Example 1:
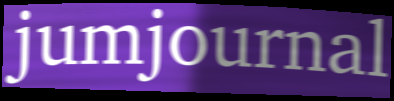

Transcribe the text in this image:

jumjournal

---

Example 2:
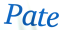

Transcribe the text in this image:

Pate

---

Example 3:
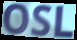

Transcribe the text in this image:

OSL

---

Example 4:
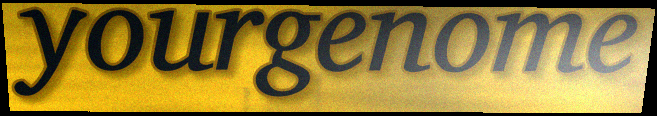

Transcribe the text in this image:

yourgenome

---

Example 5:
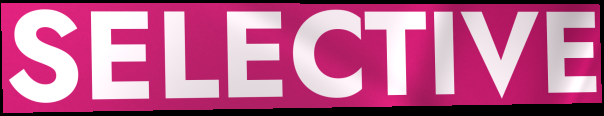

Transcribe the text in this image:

SELECTIVE